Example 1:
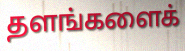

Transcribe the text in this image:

தளங்களைக்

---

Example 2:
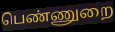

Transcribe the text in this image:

பெண்ணுறை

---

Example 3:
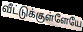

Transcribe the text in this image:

வீட்டுக்குள்ளேயே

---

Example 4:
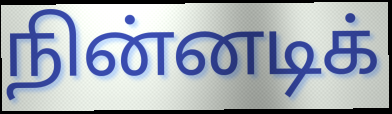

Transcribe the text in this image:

நின்னடிக்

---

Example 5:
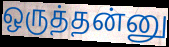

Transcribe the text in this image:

ஒருத்தன்னு